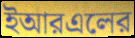
ইআরএলের